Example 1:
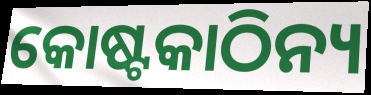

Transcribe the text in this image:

କୋଷ୍ଟକାଠିନ୍ୟ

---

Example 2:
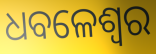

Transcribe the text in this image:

ଧବଳେଶ୍ଵର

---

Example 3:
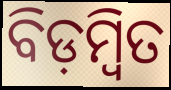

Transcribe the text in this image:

ବିଡ଼ମ୍ବିତ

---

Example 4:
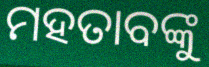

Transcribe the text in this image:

ମହତାବଙ୍କୁ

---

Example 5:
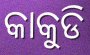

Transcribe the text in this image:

କାକୁଡି